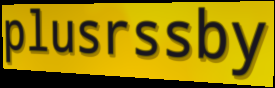
plusrssby